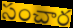
సంచార